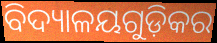
ବିଦ୍ୟାଳୟଗୁଡ଼ିକର